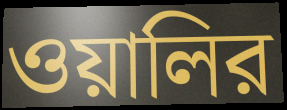
ওয়ালির